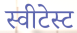
स्वीटेस्ट